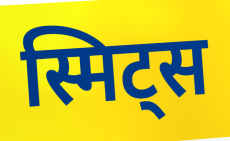
स्मिट्स